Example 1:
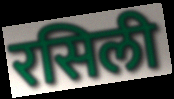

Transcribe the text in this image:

रसिली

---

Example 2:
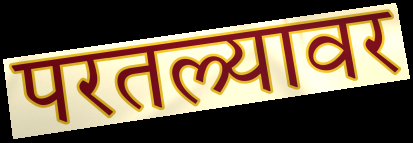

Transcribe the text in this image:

परतल्यावर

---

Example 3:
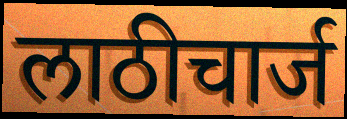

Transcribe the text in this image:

लाठीचार्ज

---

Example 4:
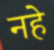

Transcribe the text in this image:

नहे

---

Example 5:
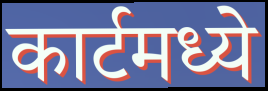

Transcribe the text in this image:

कार्टमध्ये